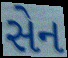
સેન